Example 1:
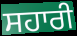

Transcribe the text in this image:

ਸਹਾਰੀ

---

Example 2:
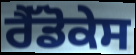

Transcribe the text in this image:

ਰੈੱਡੋਕੇਸ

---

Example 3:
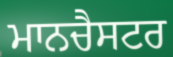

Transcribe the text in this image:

ਮਾਨਚੈਸਟਰ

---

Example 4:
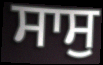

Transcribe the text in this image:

ਸਾਸੁ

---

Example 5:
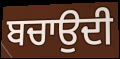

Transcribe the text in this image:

ਬਚਾਉਦੀ